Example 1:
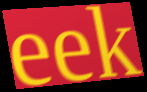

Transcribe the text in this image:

eek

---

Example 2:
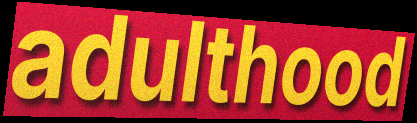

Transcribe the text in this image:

adulthood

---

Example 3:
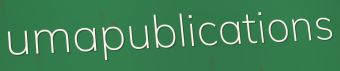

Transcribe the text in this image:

umapublications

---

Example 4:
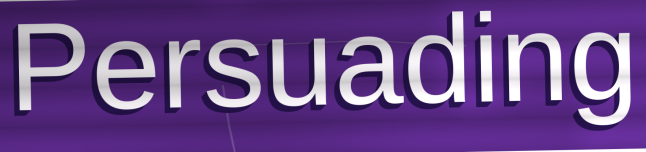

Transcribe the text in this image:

Persuading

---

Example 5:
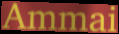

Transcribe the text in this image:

Ammai